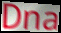
Dna